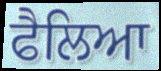
ਫੈਲਿਆ